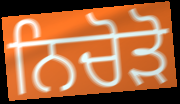
ਨਿਚੋੜੋ